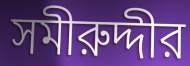
সমীরুদ্দীর